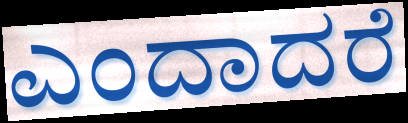
ಎಂದಾದರೆ